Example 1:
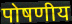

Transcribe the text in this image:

पोषणीय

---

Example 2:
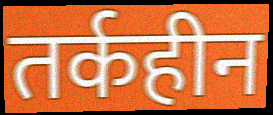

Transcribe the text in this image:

तर्कहीन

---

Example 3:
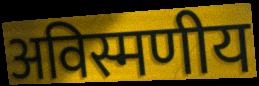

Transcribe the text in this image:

अविस्मणीय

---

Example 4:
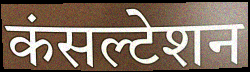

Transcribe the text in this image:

कंसल्टेशन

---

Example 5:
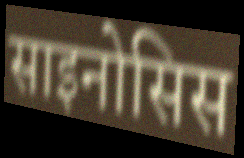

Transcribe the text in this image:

साइनोसिस